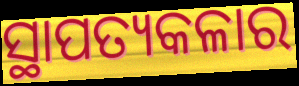
ସ୍ଥାପତ୍ୟକଳାର